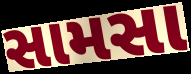
સામસા